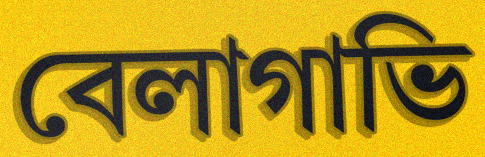
বেলাগাভি